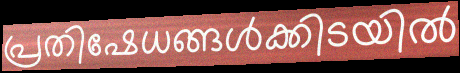
പ്രതിഷേധങ്ങൾക്കിടയിൽ